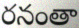
రనంతా